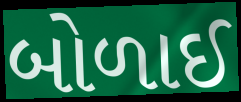
બોળાઈ